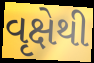
વૃક્ષેથી